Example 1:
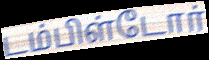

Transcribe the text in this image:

டம்பிள்டோர்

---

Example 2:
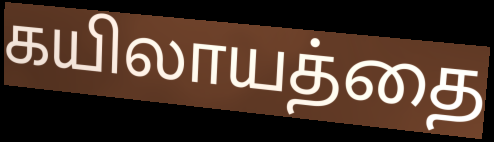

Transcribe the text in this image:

கயிலாயத்தை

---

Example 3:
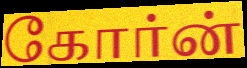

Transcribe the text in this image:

கோர்ன்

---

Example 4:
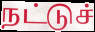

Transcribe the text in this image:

நட்டுச்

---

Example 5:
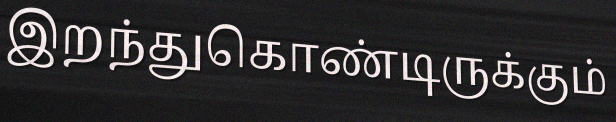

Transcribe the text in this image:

இறந்துகொண்டிருக்கும்